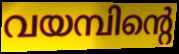
വയമ്പിന്റെ